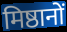
मिष्ठानों